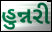
હુન્નરી